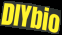
DIYbio